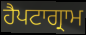
ਹੈਪਟਾਗ੍ਰਾਮ